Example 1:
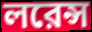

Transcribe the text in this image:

লরেন্স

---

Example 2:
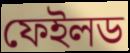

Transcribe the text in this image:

ফেইলড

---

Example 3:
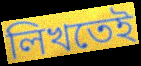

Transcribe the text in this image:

লিখতেই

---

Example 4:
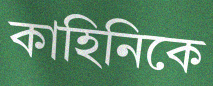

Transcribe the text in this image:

কাহিনিকে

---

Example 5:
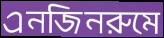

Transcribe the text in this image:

এনজিনরুমে